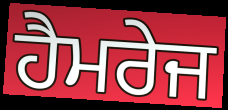
ਹੈਮਰੇਜ